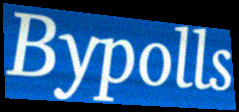
Bypolls